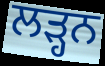
ਲੜ੍ਹਨ